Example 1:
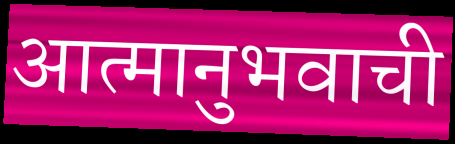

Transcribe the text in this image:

आत्मानुभवाची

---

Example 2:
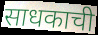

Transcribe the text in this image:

साधकाची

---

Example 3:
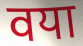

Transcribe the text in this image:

वया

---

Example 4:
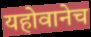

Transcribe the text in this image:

यहोवानेच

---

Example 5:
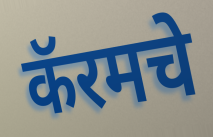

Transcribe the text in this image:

कॅरमचे